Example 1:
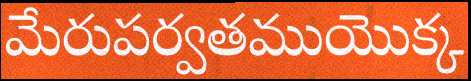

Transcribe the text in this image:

మేరుపర్వతముయొక్క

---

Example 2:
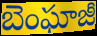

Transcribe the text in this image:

బెంఘాజీ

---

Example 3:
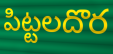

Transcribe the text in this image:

పిట్టలదొర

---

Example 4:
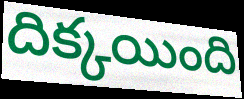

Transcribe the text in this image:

దిక్కయింది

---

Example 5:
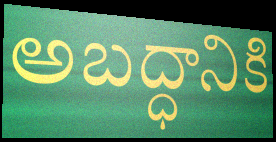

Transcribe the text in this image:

అబద్ధానికి